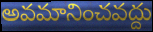
అవమానించవద్దు